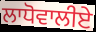
ਲਾਧੋਵਾਲੀਏ